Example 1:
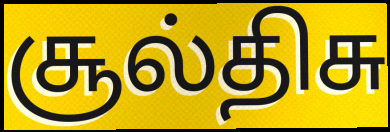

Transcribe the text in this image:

சூல்திசு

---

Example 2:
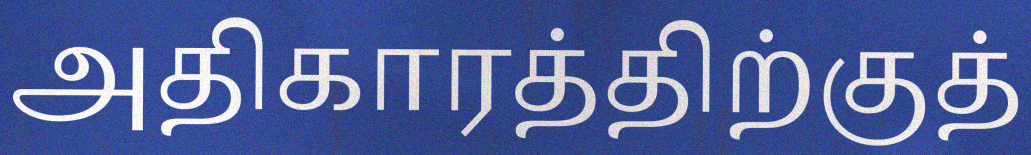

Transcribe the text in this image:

அதிகாரத்திற்குத்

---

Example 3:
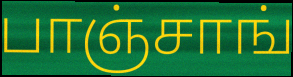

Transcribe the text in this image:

பாஞ்சாங்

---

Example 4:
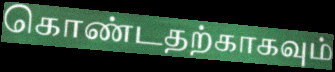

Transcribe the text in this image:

கொண்டதற்காகவும்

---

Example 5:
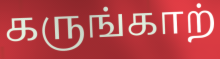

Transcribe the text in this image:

கருங்காற்